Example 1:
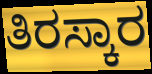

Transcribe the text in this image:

ತಿರಸ್ಕಾರ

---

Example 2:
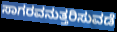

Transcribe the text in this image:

ಸಾಗರವನುತ್ತರಿಸುವಡೆ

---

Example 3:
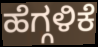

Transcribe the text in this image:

ಹೆಗ್ಗಳಿಕೆ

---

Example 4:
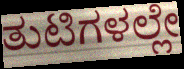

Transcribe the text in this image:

ತುಟಿಗಳಲ್ಲೇ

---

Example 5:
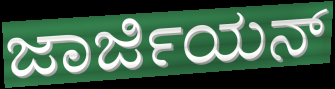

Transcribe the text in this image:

ಜಾರ್ಜಿಯನ್